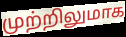
முற்றிலுமாக